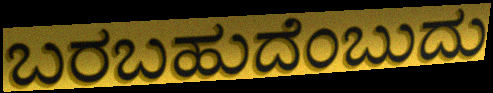
ಬರಬಹುದೆಂಬುದು